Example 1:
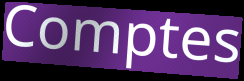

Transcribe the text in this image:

Comptes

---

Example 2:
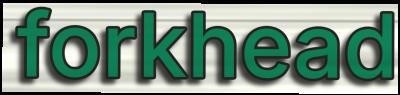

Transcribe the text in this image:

forkhead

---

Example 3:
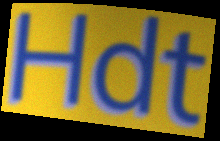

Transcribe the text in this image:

Hdt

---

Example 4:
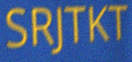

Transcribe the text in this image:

SRJTKT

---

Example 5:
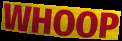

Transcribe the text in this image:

WHOOP